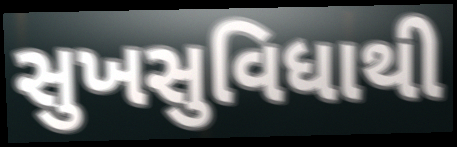
સુખસુવિધાથી